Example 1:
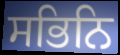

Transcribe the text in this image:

ਸਭਿਨਿ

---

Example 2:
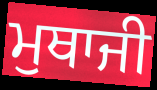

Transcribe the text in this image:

ਮੁਥਾਜੀ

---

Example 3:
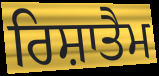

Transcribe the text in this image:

ਰਿਸ਼ਾਤੈਮ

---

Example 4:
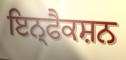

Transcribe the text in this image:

ਇਨ੍ਫੈਕਸ਼ਨ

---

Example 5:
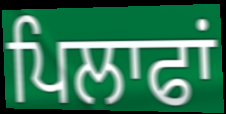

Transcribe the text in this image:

ਪਿਲਾਫਾਂ